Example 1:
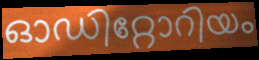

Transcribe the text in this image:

ഓഡിറ്റോറിയം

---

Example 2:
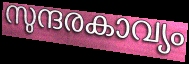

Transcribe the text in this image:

സുന്ദരകാവ്യം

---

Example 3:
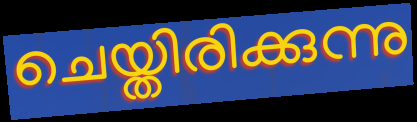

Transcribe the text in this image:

ചെയ്തിരിക്കുന്നു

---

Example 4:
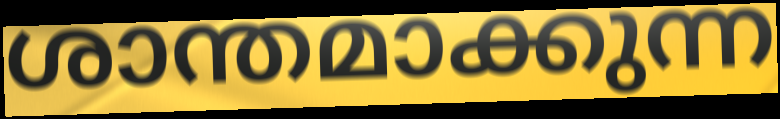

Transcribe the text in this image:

ശാന്തമാക്കുന്ന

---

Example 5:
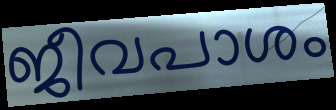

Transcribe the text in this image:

ജീവപാശം